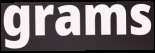
grams